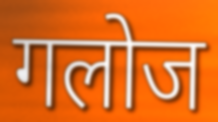
गलोज